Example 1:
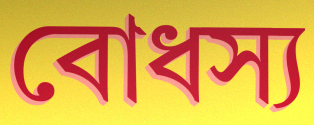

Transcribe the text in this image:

বোধস্য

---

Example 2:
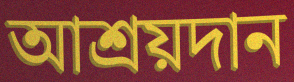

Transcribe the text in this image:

আশ্রয়দান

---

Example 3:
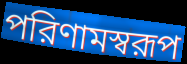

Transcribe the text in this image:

পরিণামস্বরূপ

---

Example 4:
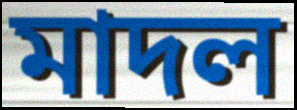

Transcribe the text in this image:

মাদল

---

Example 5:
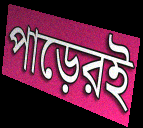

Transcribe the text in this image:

পাড়েরই